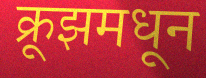
क्रूझमधून